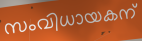
സംവിധായകന്